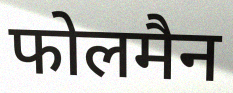
फोलमैन